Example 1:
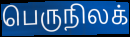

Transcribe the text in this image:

பெருநிலக்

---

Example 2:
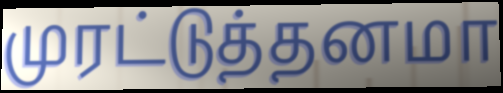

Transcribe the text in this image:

முரட்டுத்தனமா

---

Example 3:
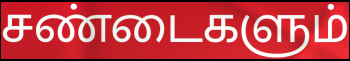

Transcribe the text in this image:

சண்டைகளும்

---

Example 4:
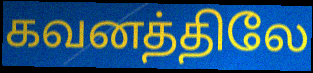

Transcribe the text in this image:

கவனத்திலே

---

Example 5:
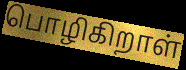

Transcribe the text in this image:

பொழிகிறாள்